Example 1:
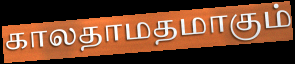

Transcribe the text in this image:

காலதாமதமாகும்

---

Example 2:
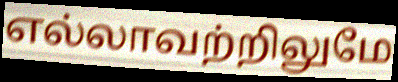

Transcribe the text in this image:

எல்லாவற்றிலுமே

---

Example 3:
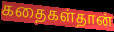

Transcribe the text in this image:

கதைகள்தான்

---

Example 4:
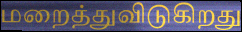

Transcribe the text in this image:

மறைத்துவிடுகிறது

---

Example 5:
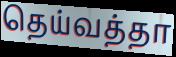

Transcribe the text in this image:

தெய்வத்தா